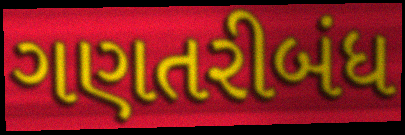
ગણતરીબંધ